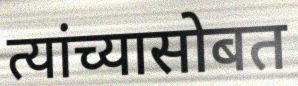
त्यांच्यासोबत